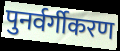
पुनर्वर्गीकरण